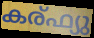
കര്ഫ്യു